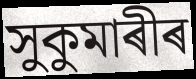
সুকুমাৰীৰ